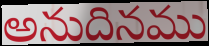
అనుదినము